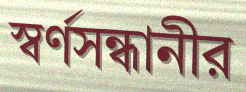
স্বর্ণসন্ধানীর